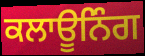
ਕਲਾਊਨਿੰਗ